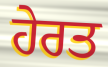
ਹੇਰਤ